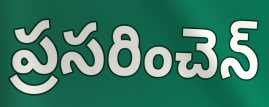
ప్రసరించెన్